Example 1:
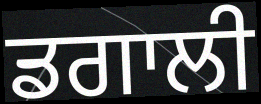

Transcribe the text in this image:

ਡਗਾਲੀ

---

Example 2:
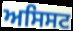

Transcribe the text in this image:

ਅਸਿਸਟ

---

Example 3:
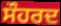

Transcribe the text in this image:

ਸੌਹਰਦ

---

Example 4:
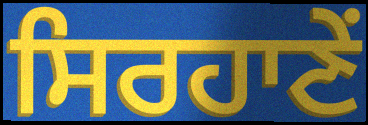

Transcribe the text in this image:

ਸਿਰਹਾਣੇਂ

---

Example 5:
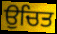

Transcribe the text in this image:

ਉਚਿਤ